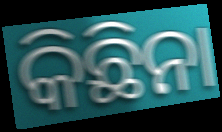
କିଛିନା